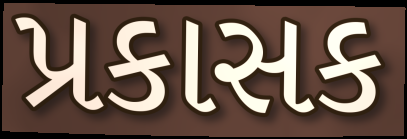
પ્રકાસક